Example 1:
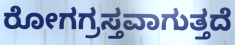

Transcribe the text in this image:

ರೋಗಗ್ರಸ್ತವಾಗುತ್ತದೆ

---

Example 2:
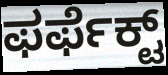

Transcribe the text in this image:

ಫರ್ಫೆಕ್ಟ್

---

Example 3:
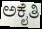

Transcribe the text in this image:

ಅಕೈತಿ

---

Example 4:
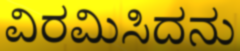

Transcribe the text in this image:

ವಿರಮಿಸಿದನು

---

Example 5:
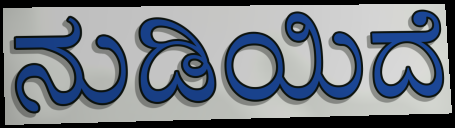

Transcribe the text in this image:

ನುಡಿಯಿದೆ